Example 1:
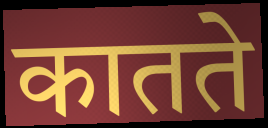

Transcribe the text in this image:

कातते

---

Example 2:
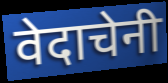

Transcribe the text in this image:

वेदाचेनी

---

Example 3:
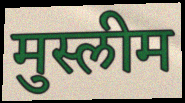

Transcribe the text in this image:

मुस्लीम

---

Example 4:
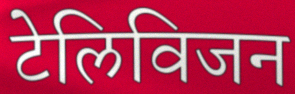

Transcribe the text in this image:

टेलिविजन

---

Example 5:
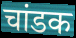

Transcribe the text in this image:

चांडक